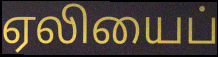
ஏலியைப்